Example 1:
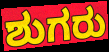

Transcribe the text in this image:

ಶುಗರು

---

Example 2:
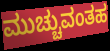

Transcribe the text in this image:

ಮುಚ್ಚುವಂತಹ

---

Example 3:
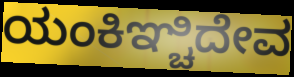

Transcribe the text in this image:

ಯಂಕಿಞ್ಚಿದೇವ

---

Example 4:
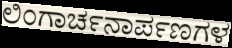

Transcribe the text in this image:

ಲಿಂಗಾರ್ಚನಾರ್ಪಣಗಳ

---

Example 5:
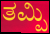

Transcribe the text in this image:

ತಮ್ಪಿ